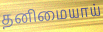
தனிமையாய்